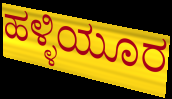
ಹಳ್ಳಿಯೂರ